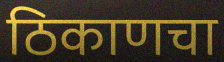
ठिकाणचा